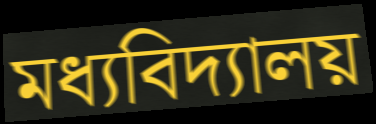
মধ্যবিদ্যালয়